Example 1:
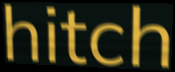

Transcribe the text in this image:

hitch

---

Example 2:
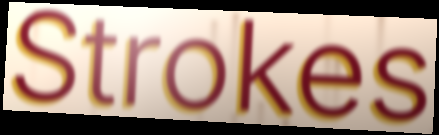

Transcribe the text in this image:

Strokes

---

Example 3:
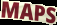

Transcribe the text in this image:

MAPS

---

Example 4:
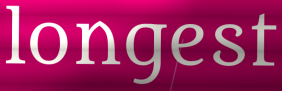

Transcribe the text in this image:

longest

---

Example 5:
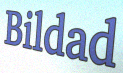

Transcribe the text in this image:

Bildad